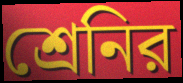
শ্রেনির